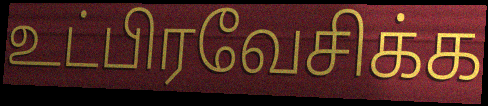
உட்பிரவேசிக்க